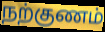
நற்குணம்